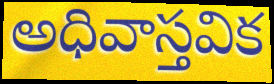
అధివాస్తవిక